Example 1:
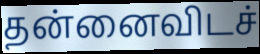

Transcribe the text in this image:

தன்னைவிடச்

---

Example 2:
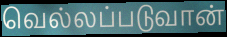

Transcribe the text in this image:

வெல்லப்படுவான்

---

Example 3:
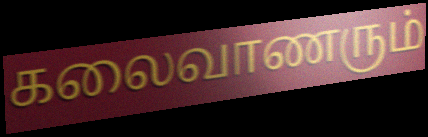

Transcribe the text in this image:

கலைவாணரும்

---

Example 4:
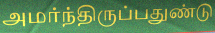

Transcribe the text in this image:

அமர்ந்திருப்பதுண்டு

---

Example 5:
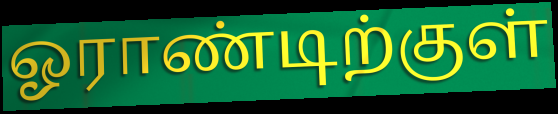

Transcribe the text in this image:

ஓராண்டிற்குள்